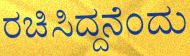
ರಚಿಸಿದ್ದನೆಂದು